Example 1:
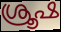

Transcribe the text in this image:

ശ്രൂഷ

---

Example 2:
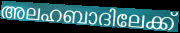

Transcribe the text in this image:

അലഹബാദിലേക്ക്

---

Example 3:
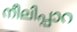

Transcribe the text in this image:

നീലിപ്പാറ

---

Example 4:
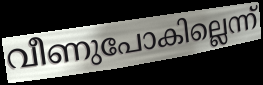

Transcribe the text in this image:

വീണുപോകില്ലെന്ന്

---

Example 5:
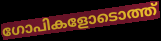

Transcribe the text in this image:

ഗോപികളോടൊത്ത്